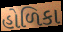
હોળિકા